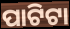
ପାଟିଟା